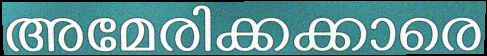
അമേരിക്കക്കാരെ